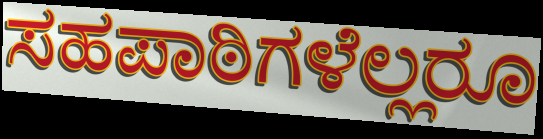
ಸಹಪಾಠಿಗಳೆಲ್ಲರೂ